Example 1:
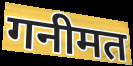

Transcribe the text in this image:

गनीमत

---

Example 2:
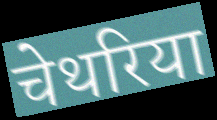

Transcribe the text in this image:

चेथरिया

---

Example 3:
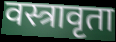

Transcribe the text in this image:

वस्त्रावृता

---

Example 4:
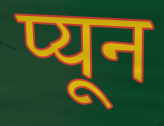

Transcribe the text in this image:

प्यून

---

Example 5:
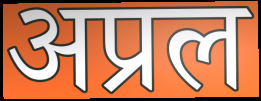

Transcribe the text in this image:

अप्रल